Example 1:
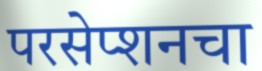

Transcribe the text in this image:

परसेप्शनचा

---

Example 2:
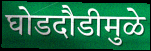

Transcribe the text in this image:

घोडदौडीमुळे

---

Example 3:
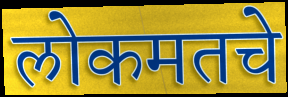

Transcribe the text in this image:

लोकमतचे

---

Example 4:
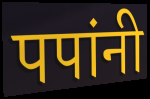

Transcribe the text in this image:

पपांनी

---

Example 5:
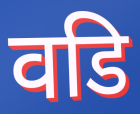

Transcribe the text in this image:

वडि